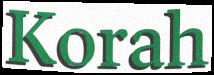
Korah